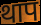
थाप